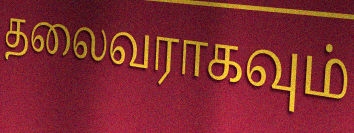
தலைவராகவும்